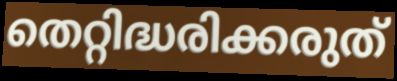
തെറ്റിദ്ധരിക്കരുത്